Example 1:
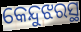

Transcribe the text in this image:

କେନ୍ଦୁଝରସ୍ଥ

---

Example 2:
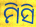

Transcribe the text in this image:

ମିସି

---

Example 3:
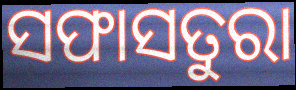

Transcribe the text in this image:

ସଫାସତୁରା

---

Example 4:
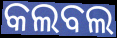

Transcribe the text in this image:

କଲବଲ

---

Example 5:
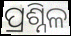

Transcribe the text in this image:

ପ୍ରଶ୍ନିଳ